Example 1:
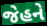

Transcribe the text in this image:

જેહને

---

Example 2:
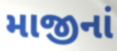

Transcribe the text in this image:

માજીનાં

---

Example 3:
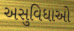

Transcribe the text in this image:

અસુવિધાઓ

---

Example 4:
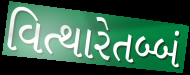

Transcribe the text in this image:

વિત્થારેતબ્બં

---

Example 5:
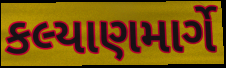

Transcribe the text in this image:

કલ્યાણમાર્ગે